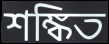
শঙ্কিত